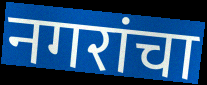
नगरांचा